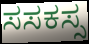
ಸಸಕಸ್ಸ